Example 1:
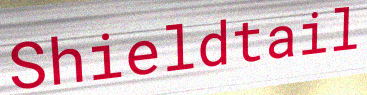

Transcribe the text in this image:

Shieldtail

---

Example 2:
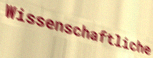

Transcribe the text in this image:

Wissenschaftliche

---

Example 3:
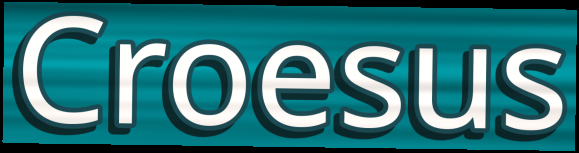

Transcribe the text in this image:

Croesus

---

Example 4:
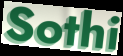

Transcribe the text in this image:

Sothi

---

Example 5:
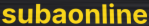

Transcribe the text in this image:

subaonline